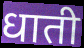
धाती